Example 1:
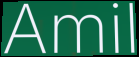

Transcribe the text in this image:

Amil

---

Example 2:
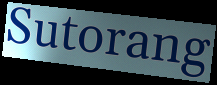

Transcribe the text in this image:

Sutorang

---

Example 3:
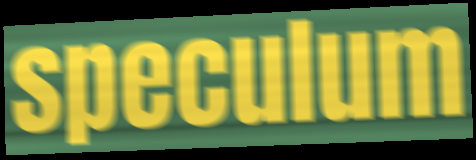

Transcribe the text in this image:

speculum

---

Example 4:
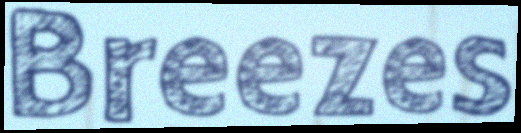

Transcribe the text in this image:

Breezes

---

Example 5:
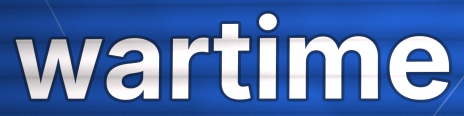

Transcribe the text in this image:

wartime